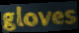
gloves